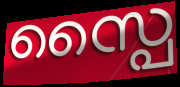
സ്പൈ